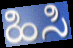
ಹಿಸಿ